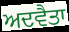
ਅਦਵੈਤਾ